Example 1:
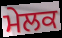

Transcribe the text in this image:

ਮੇਲਕ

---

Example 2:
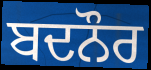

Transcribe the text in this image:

ਬਦਨੌਰ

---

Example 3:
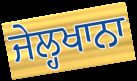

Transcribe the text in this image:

ਜੇਲ੍ਹਖਾਨਾ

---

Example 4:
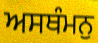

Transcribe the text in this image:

ਅਸਥੰਮਨੁ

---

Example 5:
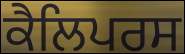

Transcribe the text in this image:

ਕੈਲਿਪਰਸ